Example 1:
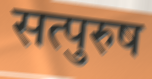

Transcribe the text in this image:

सत्पुरुष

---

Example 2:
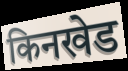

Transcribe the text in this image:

किनखेड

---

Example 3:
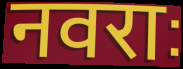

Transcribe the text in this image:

नवराः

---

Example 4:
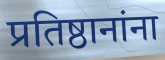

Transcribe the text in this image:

प्रतिष्ठानांना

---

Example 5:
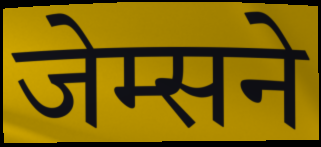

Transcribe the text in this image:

जेम्सने